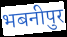
भबनीपुर